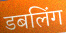
डबलिंग